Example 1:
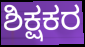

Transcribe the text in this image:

ಶಿಕ್ಷಕರ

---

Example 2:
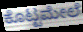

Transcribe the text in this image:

ಕೊಟ್ಟಮೇಲೆ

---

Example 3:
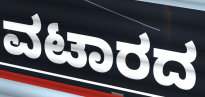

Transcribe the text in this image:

ವಟಾರದ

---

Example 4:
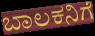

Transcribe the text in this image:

ಬಾಲಕನಿಗೆ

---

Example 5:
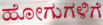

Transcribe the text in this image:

ಹೋಗುಗಳಿಗೆ